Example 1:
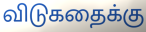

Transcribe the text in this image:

விடுகதைக்கு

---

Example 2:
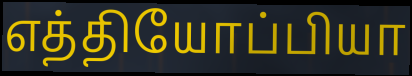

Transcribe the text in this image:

எத்தியோப்பியா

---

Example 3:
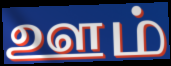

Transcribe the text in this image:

ஊம்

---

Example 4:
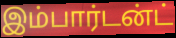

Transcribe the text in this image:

இம்பார்டன்ட்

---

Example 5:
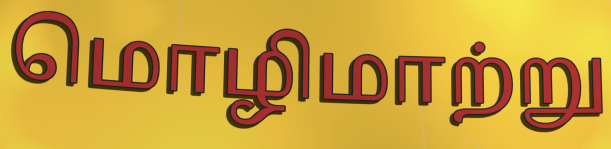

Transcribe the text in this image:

மொழிமாற்று